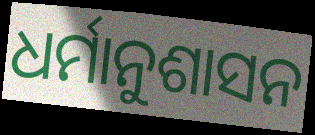
ଧର୍ମାନୁଶାସନ